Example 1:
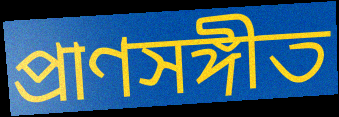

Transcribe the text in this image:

প্রাণসঙ্গীত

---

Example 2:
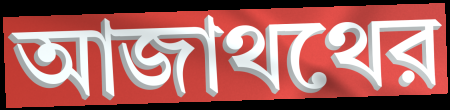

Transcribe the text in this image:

আজাথথের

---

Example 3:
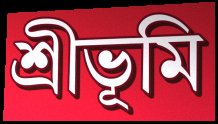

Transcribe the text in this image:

শ্রীভূমি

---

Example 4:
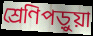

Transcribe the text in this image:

শ্রেণিপড়ুয়া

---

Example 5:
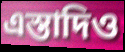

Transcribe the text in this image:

এস্তাদিও